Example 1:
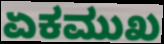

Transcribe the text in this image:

ಏಕಮುಖ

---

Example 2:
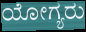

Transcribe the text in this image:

ಯೋಗ್ಯರು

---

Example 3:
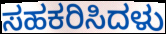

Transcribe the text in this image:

ಸಹಕರಿಸಿದಳು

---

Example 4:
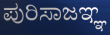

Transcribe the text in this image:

ಪುರಿಸಾಜಞ್ಞ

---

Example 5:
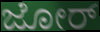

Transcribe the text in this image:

ಜೋರ್